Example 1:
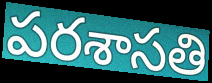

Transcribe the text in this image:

పరశాసతి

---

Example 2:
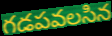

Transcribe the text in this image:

గడపవలసిన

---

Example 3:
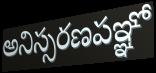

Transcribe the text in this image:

అనిస్సరణపఞ్ఞో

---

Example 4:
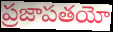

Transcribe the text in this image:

ప్రజాపతయో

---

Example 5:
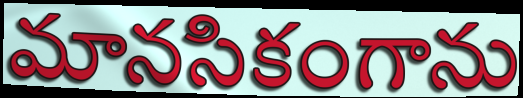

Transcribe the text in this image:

మానసికంగాను